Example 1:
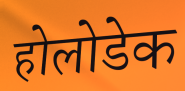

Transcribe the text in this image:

होलोडेक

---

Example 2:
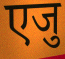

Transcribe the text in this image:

एजु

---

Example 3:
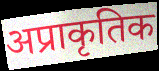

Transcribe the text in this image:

अप्राकृतिक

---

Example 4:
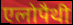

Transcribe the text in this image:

एलोपैथी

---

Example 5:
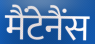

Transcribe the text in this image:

मैंटेनैंस